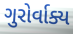
ગુરોર્વાક્ય